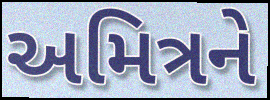
અમિત્રને